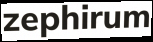
zephirum